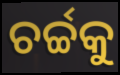
ଚର୍ଚ୍ଚକୁ